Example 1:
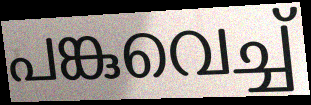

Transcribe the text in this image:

പങ്കുവെച്ച്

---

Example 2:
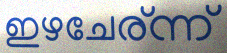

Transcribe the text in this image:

ഇഴചേര്ന്ന്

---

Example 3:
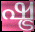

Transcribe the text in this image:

ഷ്ട്ര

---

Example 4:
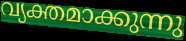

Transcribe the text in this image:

വ്യക്തമാക്കുന്നു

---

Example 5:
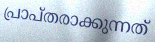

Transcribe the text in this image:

പ്രാപ്തരാക്കുന്നത്